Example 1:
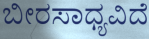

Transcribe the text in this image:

ಬೀರಸಾಧ್ಯವಿದೆ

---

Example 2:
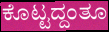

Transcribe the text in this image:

ಕೊಟ್ಟದ್ದಂತೂ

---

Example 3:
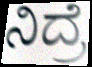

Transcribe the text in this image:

ನಿದ್ರೆ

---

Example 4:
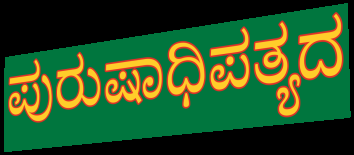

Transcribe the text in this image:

ಪುರುಷಾಧಿಪತ್ಯದ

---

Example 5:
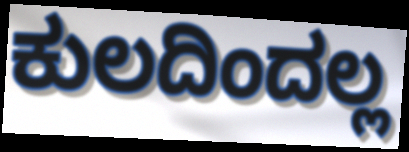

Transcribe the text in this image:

ಕುಲದಿಂದಲ್ಲ